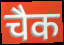
चैक